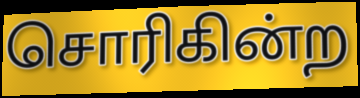
சொரிகின்ற